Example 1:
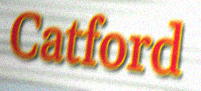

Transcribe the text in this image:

Catford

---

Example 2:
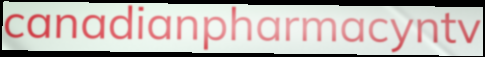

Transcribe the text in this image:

canadianpharmacyntv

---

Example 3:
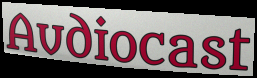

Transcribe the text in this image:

Audiocast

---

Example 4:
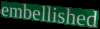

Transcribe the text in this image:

embellished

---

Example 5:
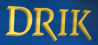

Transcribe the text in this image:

DRIK